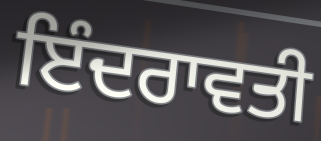
ਇੰਦਰਾਵਤੀ